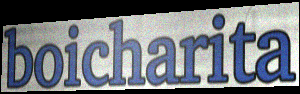
boicharita